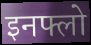
इनफ्लो